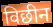
विछीन